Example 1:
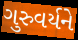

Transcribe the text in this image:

ગુરુવર્યને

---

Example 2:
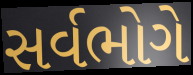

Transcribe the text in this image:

સર્વભોગે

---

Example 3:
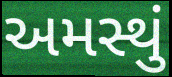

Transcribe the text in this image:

અમસ્થું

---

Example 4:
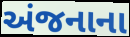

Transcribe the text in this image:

અંજનાના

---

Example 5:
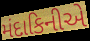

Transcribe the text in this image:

મંદાકિનીએ